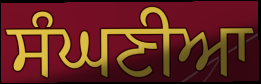
ਸੰਘਣੀਆ